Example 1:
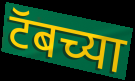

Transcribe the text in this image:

टॅबच्या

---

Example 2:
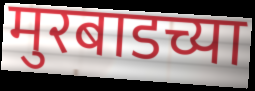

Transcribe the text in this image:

मुरबाडच्या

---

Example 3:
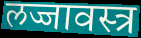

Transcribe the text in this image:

लज्जावस्त्र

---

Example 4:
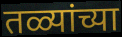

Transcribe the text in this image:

तळ्यांच्या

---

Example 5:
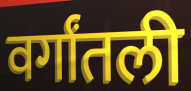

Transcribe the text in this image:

वर्गांतली